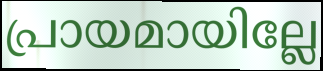
പ്രായമായില്ലേ